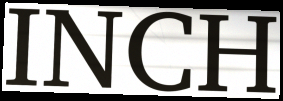
INCH